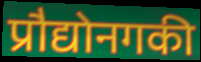
प्रौद्योनगकी